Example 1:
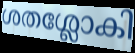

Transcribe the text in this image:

ശതശ്ലോകി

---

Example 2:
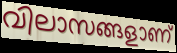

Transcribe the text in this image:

വിലാസങ്ങളാണ്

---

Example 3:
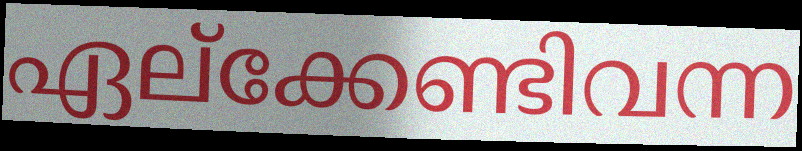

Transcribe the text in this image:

ഏല്ക്കേണ്ടിവന്ന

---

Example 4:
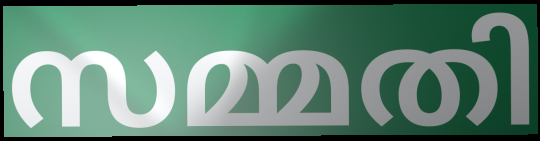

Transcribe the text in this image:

സമ്മതി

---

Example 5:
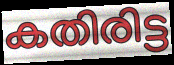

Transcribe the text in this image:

കതിരിട്ട